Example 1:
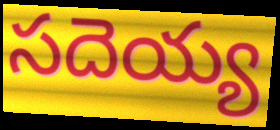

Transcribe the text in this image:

సదెయ్య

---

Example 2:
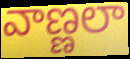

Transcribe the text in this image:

వాణ్ణలా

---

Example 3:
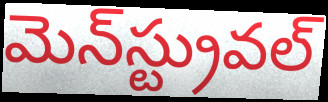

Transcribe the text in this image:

మెన్‌స్ట్రువల్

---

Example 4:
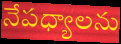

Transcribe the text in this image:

నేపధ్యాలను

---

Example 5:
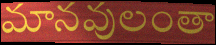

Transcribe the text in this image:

మానవులంతా